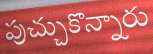
పుచ్చుకొన్నారు